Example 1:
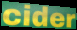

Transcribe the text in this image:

cider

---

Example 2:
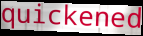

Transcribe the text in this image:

quickened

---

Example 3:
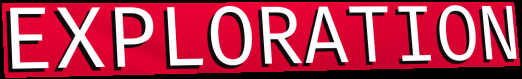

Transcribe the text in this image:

EXPLORATION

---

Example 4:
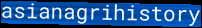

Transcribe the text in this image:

asianagrihistory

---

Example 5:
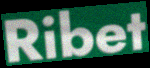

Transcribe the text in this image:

Ribet